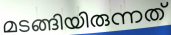
മടങ്ങിയിരുന്നത്